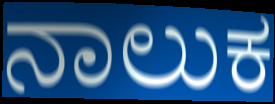
ನಾಲುಕ